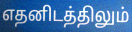
எதனிடத்திலும்